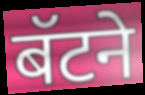
बॅटने